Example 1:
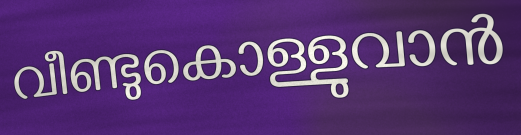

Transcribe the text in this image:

വീണ്ടുകൊള്ളുവാൻ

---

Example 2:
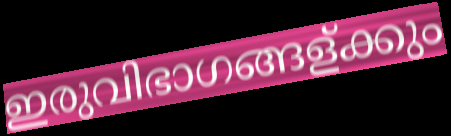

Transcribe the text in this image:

ഇരുവിഭാഗങ്ങള്ക്കും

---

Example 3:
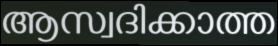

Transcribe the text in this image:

ആസ്വദിക്കാത്ത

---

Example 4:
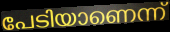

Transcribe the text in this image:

പേടിയാണെന്ന്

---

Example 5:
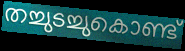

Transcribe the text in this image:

തച്ചുടച്ചുകൊണ്ട്